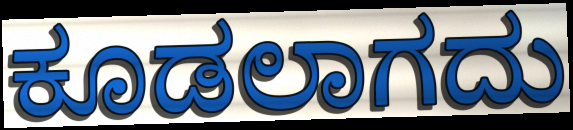
ಕೂಡಲಾಗದು